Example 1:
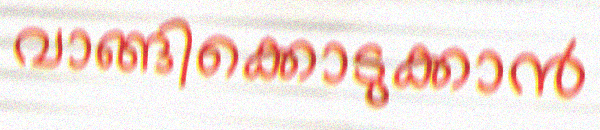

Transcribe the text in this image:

വാങ്ങിക്കൊടുക്കാൻ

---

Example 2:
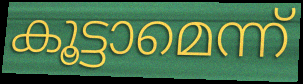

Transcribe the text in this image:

കൂട്ടാമെന്ന്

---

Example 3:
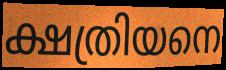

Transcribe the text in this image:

ക്ഷത്രിയനെ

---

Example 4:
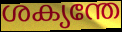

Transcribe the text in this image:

ശക്യന്തേ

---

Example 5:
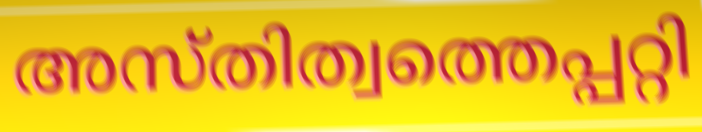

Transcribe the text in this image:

അസ്തിത്വത്തെപ്പറ്റി